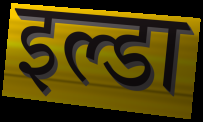
इल्डा